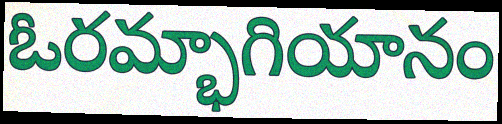
ఓరమ్భాగియానం